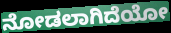
ನೋಡಲಾಗಿದೆಯೋ